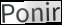
Ponir